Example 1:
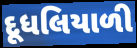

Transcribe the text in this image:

દૂધલિયાળી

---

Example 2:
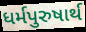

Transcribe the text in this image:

ધર્મપુરુષાર્થ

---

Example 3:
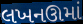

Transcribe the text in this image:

લખનઊમાં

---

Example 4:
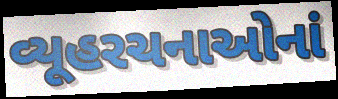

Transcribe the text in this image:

વ્યૂહરચનાઓનાં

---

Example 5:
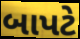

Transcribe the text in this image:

બાપટે